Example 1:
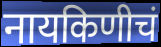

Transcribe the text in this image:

नायकिणीचं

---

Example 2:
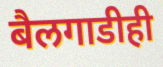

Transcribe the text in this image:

बैलगाडीही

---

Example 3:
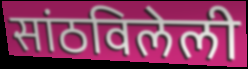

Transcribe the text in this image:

सांठविलेली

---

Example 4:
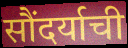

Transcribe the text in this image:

सौंदर्याची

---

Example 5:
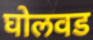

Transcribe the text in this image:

घोलवड